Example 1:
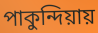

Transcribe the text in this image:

পাকুন্দিয়ায়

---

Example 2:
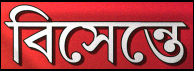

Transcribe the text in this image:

বিসেন্তে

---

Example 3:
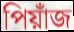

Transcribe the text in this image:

পিয়াঁজ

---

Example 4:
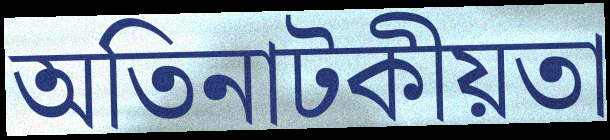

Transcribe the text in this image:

অতিনাটকীয়তা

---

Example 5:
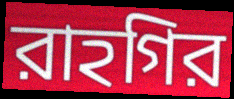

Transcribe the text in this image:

রাহগির